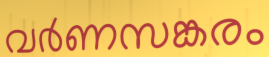
വർണസങ്കരം